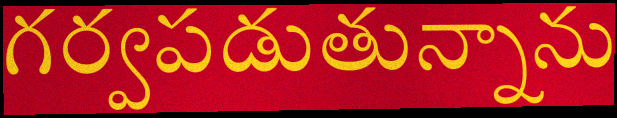
గర్వపడుతున్నాను